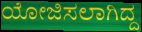
ಯೋಜಿಸಲಾಗಿದ್ದ